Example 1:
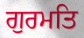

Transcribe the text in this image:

ਗੁਰਮਤਿ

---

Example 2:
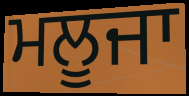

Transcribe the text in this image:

ਮਲੂਜਾ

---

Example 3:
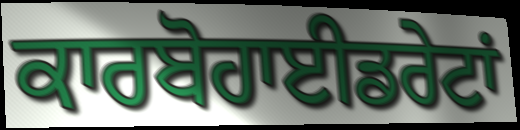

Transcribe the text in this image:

ਕਾਰਬੋਹਾਈਡਰੇਟਾਂ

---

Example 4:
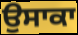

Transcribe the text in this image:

ਉਸਾਕਾ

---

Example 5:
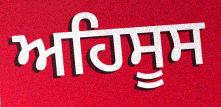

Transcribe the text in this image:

ਅਹਿਸੂਸ